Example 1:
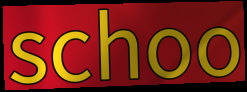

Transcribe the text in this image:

schoo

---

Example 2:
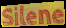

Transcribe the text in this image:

Silene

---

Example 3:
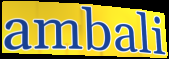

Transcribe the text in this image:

ambali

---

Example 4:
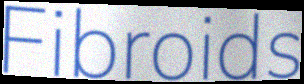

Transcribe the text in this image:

Fibroids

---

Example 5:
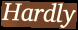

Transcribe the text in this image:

Hardly